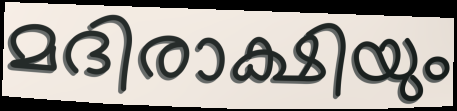
മദിരാക്ഷിയും